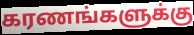
கரணங்களுக்கு